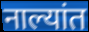
नाल्यांत